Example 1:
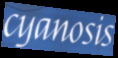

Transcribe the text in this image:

cyanosis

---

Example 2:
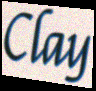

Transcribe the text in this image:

Clay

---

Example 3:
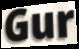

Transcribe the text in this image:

Gur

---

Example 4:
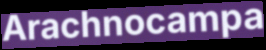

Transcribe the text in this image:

Arachnocampa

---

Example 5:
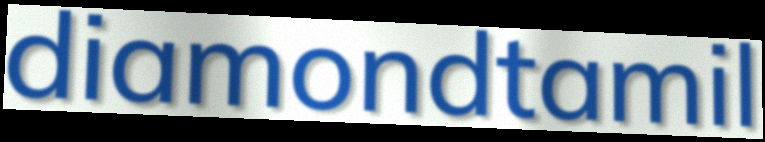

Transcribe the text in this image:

diamondtamil